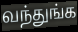
வந்துங்க